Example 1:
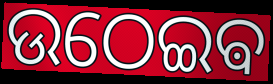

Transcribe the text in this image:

ଉଠେଇଵ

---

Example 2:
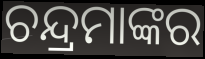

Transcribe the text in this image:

ଚନ୍ଦ୍ରମାଙ୍କର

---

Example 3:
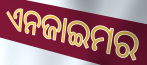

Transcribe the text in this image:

ଏନଜାଇମର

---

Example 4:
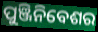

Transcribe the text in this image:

ପୁଞ୍ଜିନିବେଶର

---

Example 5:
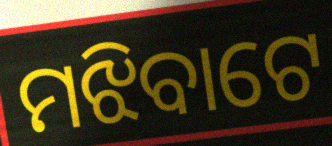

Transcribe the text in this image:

ମଝିବାଟେ